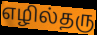
எழில்தரு